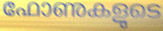
ഫോണുകളുടെ